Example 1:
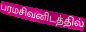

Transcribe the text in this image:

பரமசிவனிடத்தில்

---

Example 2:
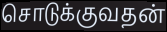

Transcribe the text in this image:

சொடுக்குவதன்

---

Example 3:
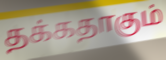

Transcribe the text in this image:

தக்கதாகும்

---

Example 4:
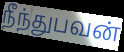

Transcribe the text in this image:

நீந்துபவன்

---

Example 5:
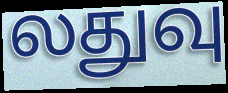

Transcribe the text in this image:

லதுவு